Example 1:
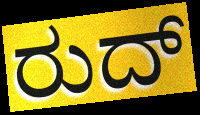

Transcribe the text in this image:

ರುದ್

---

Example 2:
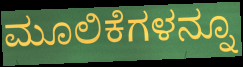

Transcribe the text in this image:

ಮೂಲಿಕೆಗಳನ್ನೂ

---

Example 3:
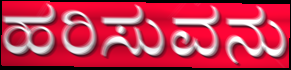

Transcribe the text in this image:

ಹರಿಸುವನು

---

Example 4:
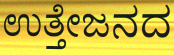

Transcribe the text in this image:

ಉತ್ತೇಜನದ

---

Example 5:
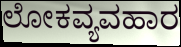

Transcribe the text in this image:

ಲೋಕವ್ಯವಹಾರ